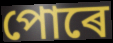
পোৰে